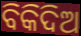
ବିକିଦିଅ